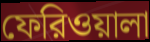
ফেরিওয়ালা